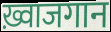
ख़्वाजगान